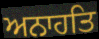
ਅਨਾਹਤਿ